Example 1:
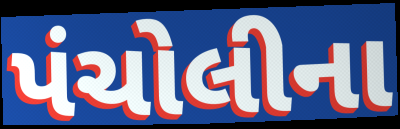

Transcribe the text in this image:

પંચોલીના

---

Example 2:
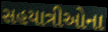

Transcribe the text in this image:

સહયાત્રીઓના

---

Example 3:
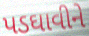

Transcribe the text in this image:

પડઘાવીને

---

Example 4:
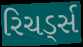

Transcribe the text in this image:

રિચર્ડ્સ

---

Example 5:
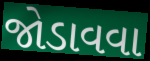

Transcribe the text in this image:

જોડાવવા